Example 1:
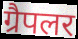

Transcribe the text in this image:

ग्रैपलर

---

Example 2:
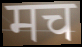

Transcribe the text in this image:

मच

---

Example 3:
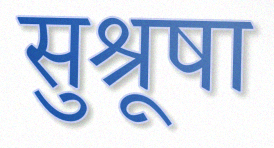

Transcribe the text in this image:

सुश्रूषा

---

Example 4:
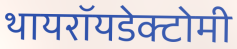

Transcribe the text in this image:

थायरॉयडेक्टोमी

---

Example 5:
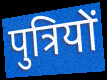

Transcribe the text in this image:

पुत्रियों